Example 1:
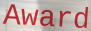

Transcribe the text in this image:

Award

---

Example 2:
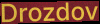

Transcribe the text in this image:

Drozdov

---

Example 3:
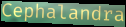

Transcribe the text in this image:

Cephalandra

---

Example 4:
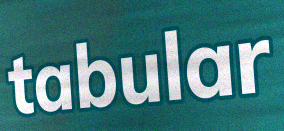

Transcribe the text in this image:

tabular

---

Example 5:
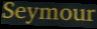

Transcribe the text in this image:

Seymour